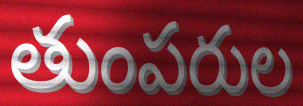
తుంపరుల